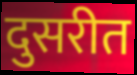
दुसरीत